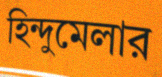
হিন্দুমেলার